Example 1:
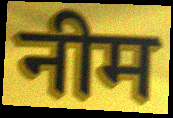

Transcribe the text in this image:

नीम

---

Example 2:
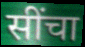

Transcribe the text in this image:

सींचा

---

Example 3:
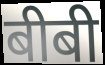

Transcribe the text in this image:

बीबी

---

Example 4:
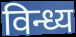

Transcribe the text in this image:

विन्ध्य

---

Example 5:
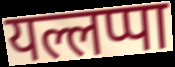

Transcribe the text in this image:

यल्लप्पा